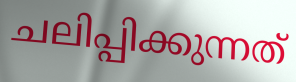
ചലിപ്പിക്കുന്നത്